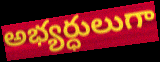
అభ్యర్ధులుగా